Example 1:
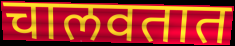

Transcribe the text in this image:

चालवतात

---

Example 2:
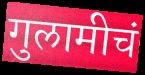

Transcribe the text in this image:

गुलामीचं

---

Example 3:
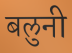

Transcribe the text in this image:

बलुनी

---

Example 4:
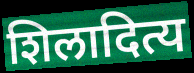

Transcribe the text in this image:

शिलादित्य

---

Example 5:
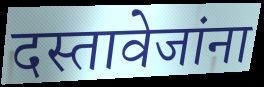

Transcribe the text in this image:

दस्तावेजांना